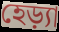
হেড়্যা